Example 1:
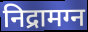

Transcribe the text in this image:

निद्रामग्न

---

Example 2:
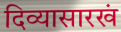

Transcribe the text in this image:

दिव्यासारखं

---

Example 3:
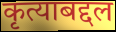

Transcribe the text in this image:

कृत्याबद्दल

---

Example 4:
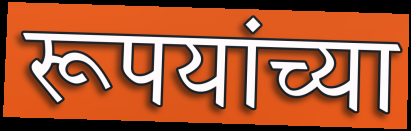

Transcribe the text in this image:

रूपयांच्या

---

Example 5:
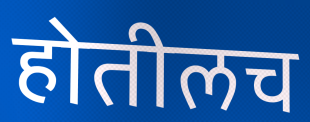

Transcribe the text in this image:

होतीलच